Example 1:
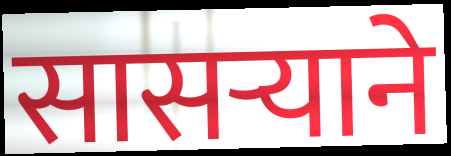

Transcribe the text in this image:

सासऱ्याने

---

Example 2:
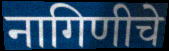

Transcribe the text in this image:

नागिणीचे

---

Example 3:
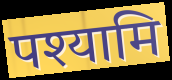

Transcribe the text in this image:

पश्यामि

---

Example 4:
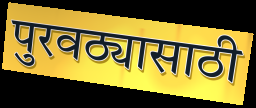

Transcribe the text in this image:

पुरवठ्यासाठी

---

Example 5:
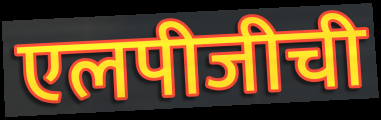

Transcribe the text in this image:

एलपीजीची